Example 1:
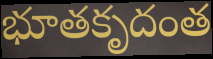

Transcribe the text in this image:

భూతకృదంత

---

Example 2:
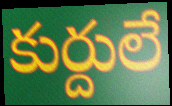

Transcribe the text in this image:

కుర్దులే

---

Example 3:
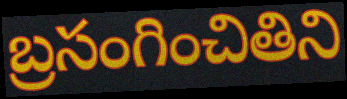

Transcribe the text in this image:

బ్రసంగించితిని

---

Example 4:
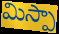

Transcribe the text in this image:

మిస్పా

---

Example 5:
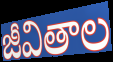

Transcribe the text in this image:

జీవితాల